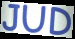
JUD